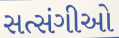
સત્સંગીઓ